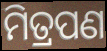
ମିତ୍ରପଣ